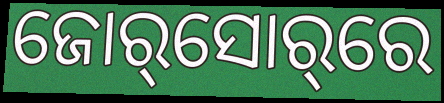
ଜୋର୍‌ସୋର୍‌ରେ